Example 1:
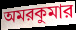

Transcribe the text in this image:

অমরকুমার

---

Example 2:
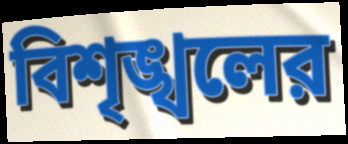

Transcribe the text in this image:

বিশৃঙ্খলের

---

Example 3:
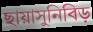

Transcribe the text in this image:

ছায়াসুনিবিড়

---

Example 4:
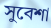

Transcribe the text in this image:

সুবেশা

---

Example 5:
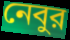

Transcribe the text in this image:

নেবুর